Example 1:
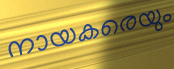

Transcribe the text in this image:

നായകരെയും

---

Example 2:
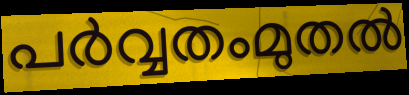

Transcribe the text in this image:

പർവ്വതംമുതൽ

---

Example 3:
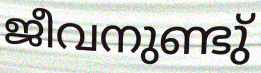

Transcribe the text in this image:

ജീവനുണ്ടു്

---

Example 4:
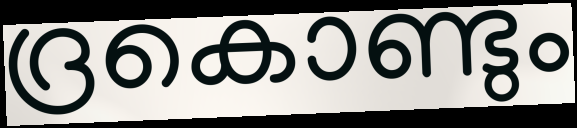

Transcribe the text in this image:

ദ്രകൊണ്ടും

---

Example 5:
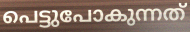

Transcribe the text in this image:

പെട്ടുപോകുന്നത്